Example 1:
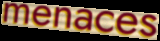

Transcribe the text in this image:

menaces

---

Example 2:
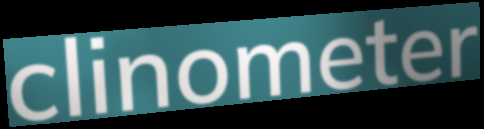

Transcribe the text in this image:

clinometer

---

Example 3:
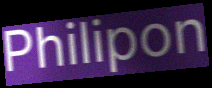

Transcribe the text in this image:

Philipon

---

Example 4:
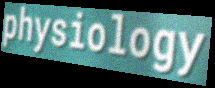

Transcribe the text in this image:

physiology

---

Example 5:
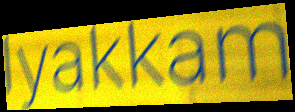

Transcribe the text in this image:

Iyakkam